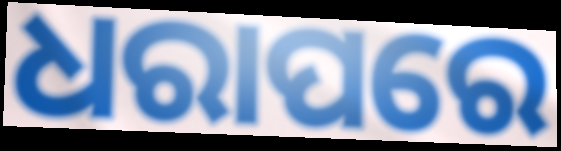
ଧରାପରେ